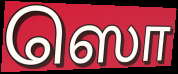
ஸொ